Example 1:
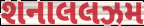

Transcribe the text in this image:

શનાલલઝમ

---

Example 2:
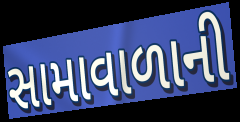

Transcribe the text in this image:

સામાવાળાની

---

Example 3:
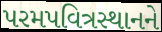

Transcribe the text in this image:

પરમપવિત્રસ્થાનને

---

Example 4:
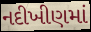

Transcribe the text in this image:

નદીખીણમાં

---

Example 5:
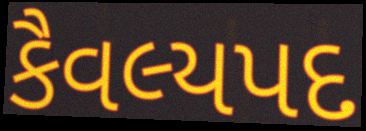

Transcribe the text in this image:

કૈવલ્યપદ